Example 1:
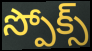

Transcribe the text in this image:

స్పోక్స్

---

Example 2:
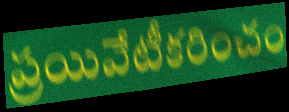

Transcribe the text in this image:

ప్రయివేటీకరించం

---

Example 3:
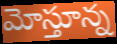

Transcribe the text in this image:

మోస్తూన్న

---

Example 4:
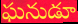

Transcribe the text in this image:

ఘనుడూ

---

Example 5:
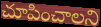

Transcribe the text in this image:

చూపించాలని